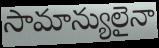
సామాన్యులైనా